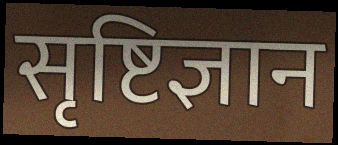
सृष्टिज्ञान